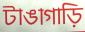
টাঙাগাড়ি